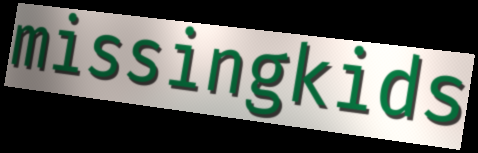
missingkids